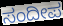
ಸಂದೀಪ